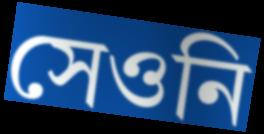
সেওনি